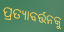
ପ୍ରତ୍ୟାବର୍ତ୍ତନକୁ